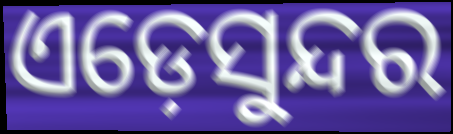
ଏଡ଼େସୁନ୍ଦର